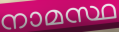
നാമസ്ഥ